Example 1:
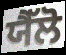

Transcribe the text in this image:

ਯੈੱਲੋ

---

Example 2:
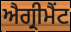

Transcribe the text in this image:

ਐਗ੍ਰੀਮੈਂਟ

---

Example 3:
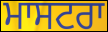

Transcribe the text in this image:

ਮਾਸਟਰਾ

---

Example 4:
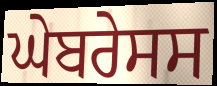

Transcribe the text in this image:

ਘੇਬਰੇਸਸ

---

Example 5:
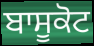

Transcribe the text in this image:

ਬਾਸੂਕੋਟ